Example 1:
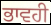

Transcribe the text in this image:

ਭਾਵਹੀ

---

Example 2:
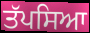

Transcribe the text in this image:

ਤੱਪਸਿਆ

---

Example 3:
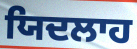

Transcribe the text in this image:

ਯਿਦਲਾਹ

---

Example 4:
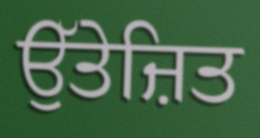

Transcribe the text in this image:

ਉੱਤੇਜ਼ਿਤ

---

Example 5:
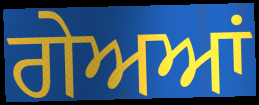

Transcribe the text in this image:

ਗੇਅਆਂ